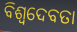
ବିଶ୍ୱଦେବତା